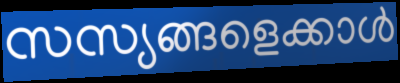
സസ്യങ്ങളെക്കാൾ